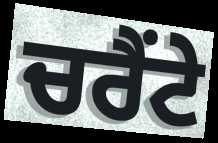
ਚਰੈਂਟੇ